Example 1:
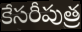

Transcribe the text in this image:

కేసరీపుత్ర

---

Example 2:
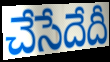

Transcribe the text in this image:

చేసేదేదీ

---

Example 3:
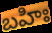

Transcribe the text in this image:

బహిః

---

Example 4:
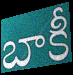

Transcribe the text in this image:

బాకీ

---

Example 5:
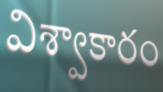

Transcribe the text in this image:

విశ్వాకారం